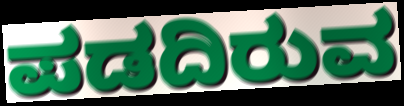
ಪಡದಿರುವ